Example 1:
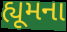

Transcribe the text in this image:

હ્યૂમના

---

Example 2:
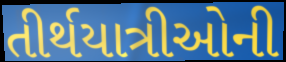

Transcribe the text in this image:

તીર્થયાત્રીઓની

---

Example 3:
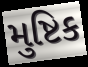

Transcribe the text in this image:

મુષ્ટિક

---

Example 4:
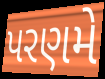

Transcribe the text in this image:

પરણમે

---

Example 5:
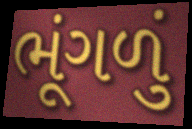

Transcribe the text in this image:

ભૂંગળું